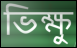
ভিক্ষু